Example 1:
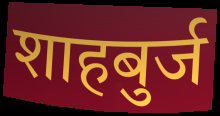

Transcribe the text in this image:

शाहबुर्ज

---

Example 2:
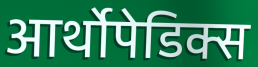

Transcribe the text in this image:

आर्थोपेडिक्स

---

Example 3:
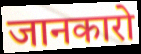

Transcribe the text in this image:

जानकारो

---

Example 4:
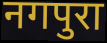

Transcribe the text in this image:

नगपुरा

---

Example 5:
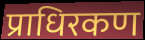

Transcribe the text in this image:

प्राधिरकण